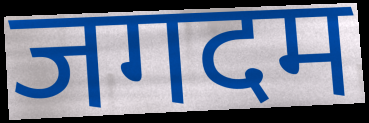
जगदम